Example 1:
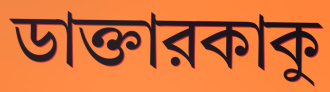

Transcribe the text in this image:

ডাক্তারকাকু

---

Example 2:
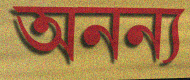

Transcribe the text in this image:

অনন্য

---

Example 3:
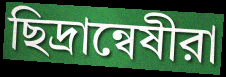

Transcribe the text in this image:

ছিদ্রান্বেষীরা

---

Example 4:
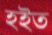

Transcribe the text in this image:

হইত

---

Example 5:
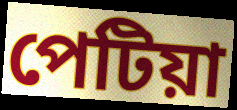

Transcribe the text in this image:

পেটিয়া